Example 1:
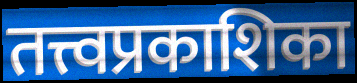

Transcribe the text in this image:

तत्त्वप्रकाशिका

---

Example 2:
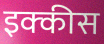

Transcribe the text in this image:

इक्‍कीस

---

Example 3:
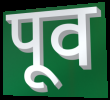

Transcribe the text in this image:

पूव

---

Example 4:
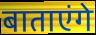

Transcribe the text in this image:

बाताएंगे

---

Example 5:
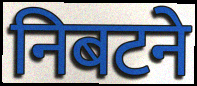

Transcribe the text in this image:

निबटने